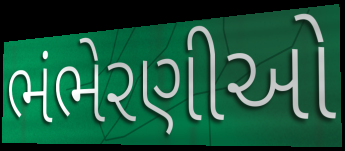
ભંભેરણીઓ